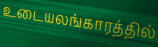
உடையலங்காரத்தில்